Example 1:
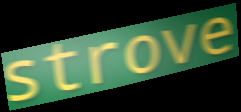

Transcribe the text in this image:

strove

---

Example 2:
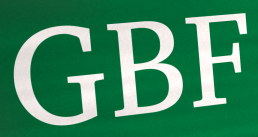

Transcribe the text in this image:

GBF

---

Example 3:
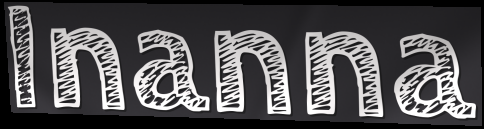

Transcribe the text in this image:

Inanna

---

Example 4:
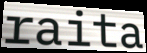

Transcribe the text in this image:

raita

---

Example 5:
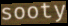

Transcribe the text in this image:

sooty